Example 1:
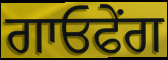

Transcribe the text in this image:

ਗਾਓਫੇਂਗ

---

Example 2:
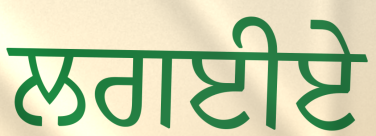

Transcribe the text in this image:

ਲਗਈਏ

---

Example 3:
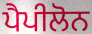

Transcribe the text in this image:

ਪੈਪੀਲੋਨ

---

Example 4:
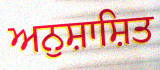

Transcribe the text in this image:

ਅਨੁਸ਼ਾਸ਼ਿਤ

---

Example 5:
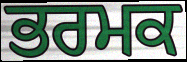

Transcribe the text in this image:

ਭਰਮਕ